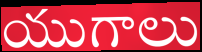
యుగాలు